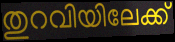
തുറവിയിലേക്ക്